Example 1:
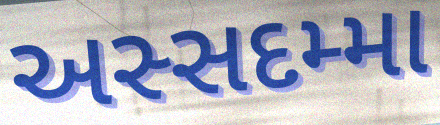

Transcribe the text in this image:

અસ્સદમ્મા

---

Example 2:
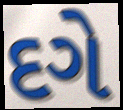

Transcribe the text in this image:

દગે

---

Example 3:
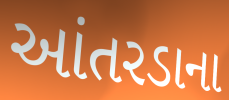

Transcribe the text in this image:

આંતરડાના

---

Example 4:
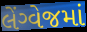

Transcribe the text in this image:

લેંગ્વેજમાં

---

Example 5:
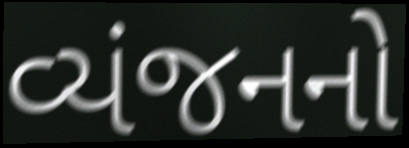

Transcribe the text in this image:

વ્યંજનનો